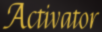
Activator